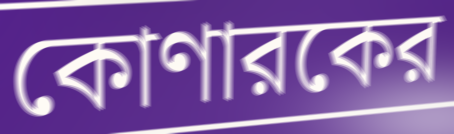
কোণারকের